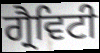
ਗ੍ਰੈਵਿਟੀ